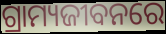
ଗ୍ରାମ୍ୟଜୀବନରେ